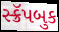
સ્ક્રૅપબુક